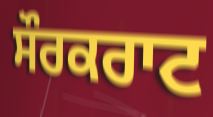
ਸੌਰਕਰਾਟ